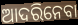
ଆଦରିନେବା